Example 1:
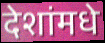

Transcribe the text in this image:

देशांमधे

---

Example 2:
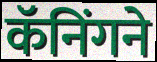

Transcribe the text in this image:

कॅनिंगने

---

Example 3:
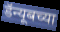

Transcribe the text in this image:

डॅन्यूबच्या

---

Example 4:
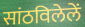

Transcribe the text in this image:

सांठविलेलें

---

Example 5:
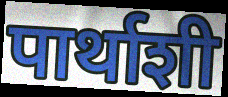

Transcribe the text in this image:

पार्थाशी